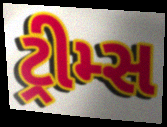
ટ્રીમ્સ